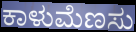
ಕಾಳುಮೆಣಸು